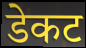
डेकट